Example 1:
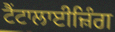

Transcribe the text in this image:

ਟੈਂਟਾਲਾਈਜ਼ਿੰਗ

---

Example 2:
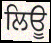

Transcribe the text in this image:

ਲਿਊ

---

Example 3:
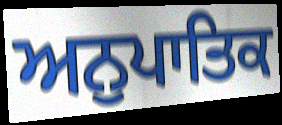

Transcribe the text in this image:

ਅਨੁਪਾਤਿਕ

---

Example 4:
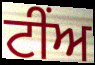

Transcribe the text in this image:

ਟੀਂਅ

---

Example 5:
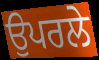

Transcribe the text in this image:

ਉਪਰਲੇ